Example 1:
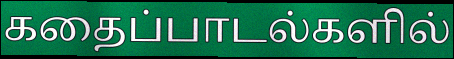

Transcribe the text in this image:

கதைப்பாடல்களில்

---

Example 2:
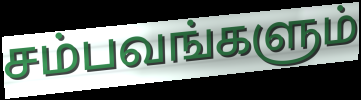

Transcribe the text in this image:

சம்பவங்களும்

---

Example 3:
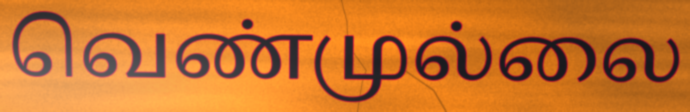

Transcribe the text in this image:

வெண்முல்லை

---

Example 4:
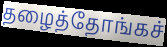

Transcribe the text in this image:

தழைத்தோங்கச்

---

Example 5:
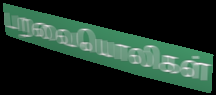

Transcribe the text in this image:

பறவையொலிகள்